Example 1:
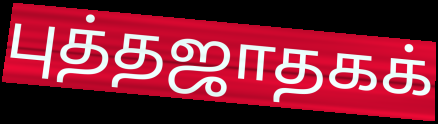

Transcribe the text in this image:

புத்தஜாதகக்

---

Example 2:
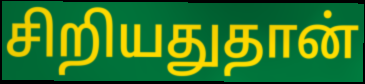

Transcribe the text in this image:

சிறியதுதான்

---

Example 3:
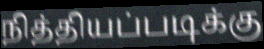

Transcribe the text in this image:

நித்தியப்படிக்கு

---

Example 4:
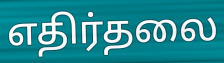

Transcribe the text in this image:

எதிர்தலை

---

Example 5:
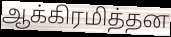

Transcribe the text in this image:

ஆக்கிரமித்தன